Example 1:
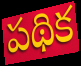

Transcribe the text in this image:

పథిక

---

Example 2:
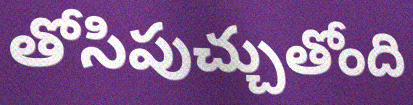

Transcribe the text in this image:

తోసిపుచ్చుతోంది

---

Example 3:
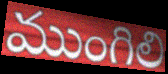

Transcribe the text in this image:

ముంగిలి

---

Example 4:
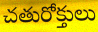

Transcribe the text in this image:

చతురోక్తులు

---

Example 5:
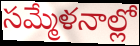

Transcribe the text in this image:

సమ్మేళనాల్లో